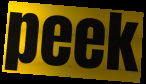
peek